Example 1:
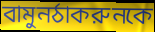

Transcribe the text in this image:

বামুনঠাকরুনকে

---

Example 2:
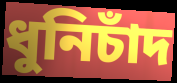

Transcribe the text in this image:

ধুনিচাঁদ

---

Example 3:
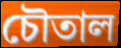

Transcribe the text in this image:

চৌতাল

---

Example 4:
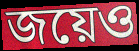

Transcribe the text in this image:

জয়েও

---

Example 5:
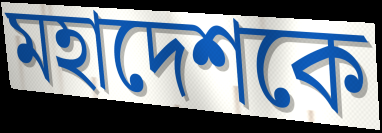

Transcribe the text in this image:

মহাদেশকে